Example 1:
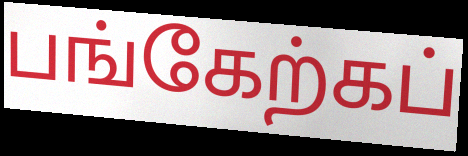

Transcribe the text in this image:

பங்கேற்கப்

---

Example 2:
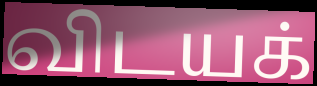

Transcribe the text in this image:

விடயக்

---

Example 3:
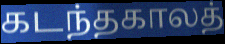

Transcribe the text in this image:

கடந்தகாலத்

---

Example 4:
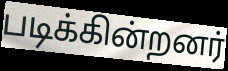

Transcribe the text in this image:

படிக்கின்றனர்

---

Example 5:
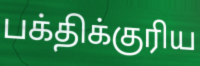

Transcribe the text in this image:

பக்திக்குரிய